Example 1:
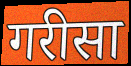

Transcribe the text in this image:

गरीसा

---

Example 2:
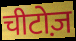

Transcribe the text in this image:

चीटोज़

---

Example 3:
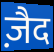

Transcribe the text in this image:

ज़ैद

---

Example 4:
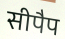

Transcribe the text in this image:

सीपैप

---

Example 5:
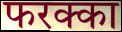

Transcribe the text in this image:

फरक्का